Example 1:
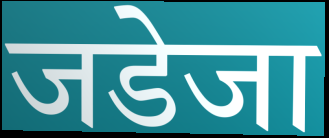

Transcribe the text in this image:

जडेजा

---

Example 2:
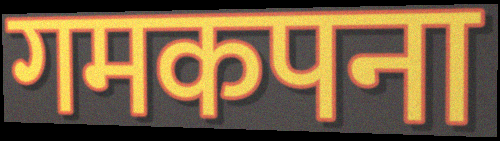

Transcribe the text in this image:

गमकपना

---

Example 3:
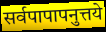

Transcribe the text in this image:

सर्वपापापनुत्तये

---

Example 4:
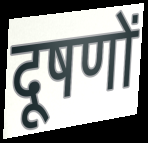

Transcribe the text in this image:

दूषणों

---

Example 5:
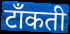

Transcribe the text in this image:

टाँकती